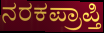
ನರಕಪ್ರಾಪ್ತಿ